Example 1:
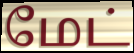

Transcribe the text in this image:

மேட்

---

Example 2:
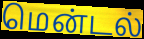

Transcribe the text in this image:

மென்டல்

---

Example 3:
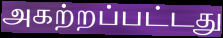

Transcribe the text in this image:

அகற்றப்பட்டது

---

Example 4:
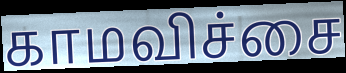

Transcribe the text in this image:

காமவிச்சை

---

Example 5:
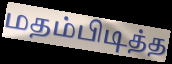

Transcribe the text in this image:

மதம்பிடித்த